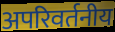
अपरिवर्तनीय